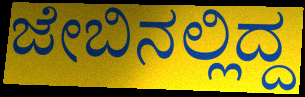
ಜೇಬಿನಲ್ಲಿದ್ದ